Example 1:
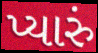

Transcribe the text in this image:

પ્યારું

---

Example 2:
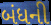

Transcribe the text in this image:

બંધની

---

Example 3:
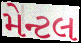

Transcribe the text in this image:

મેન્ટલ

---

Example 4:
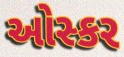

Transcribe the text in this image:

ઓસ્કર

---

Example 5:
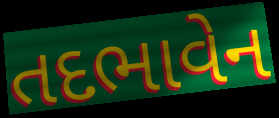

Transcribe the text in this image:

તદભાવેન